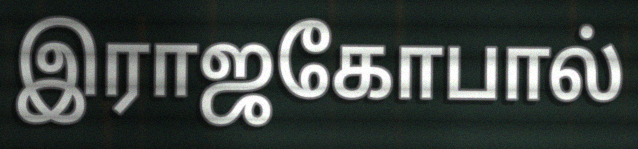
இராஜகோபால்